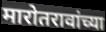
मारोतरावांच्या